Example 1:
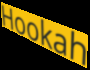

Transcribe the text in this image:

Hookah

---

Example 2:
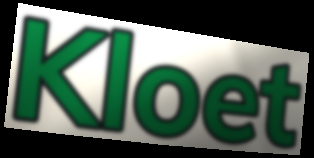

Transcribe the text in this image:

Kloet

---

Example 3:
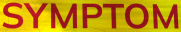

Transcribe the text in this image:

SYMPTOM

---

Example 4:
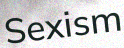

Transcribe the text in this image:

Sexism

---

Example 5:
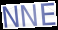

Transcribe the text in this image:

NNE